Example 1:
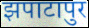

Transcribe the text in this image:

झपाटापुर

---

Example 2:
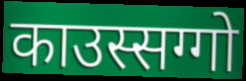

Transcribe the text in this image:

काउस्सग्गो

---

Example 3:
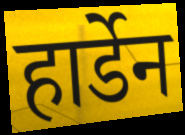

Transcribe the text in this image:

हार्डेन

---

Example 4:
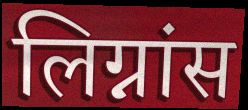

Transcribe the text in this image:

लिग्नांस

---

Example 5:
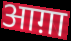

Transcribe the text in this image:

आग़ा